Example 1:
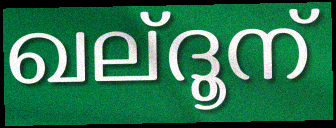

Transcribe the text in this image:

ഖല്ദൂന്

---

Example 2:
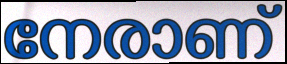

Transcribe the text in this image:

നേരാണ്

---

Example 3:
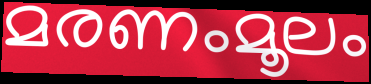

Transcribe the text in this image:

മരണംമൂലം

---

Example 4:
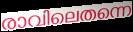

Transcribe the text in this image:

രാവിലെതന്നെ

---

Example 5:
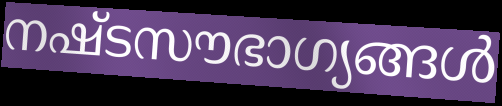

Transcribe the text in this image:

നഷ്ടസൗഭാഗ്യങ്ങൾ